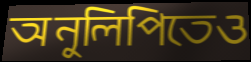
অনুলিপিতেও